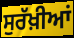
ਸੁਰੱਖ਼ੀਆਂ